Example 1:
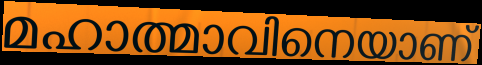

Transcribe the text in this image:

മഹാത്മാവിനെയാണ്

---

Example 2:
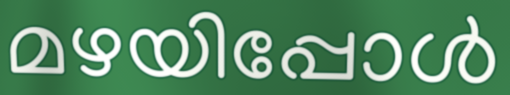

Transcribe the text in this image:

മഴയിപ്പോൾ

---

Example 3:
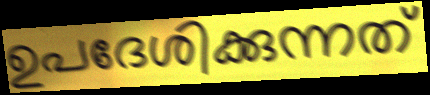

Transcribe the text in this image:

ഉപദേശിക്കുന്നത്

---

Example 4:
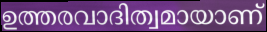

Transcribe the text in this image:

ഉത്തരവാദിത്വമായാണ്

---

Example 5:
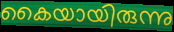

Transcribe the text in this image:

കൈയായിരുന്നു